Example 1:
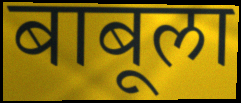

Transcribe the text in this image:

बाबूला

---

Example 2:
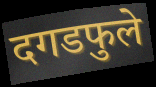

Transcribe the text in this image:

दगडफुले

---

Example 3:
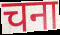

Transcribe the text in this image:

चना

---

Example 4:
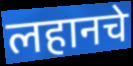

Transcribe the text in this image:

लहानचे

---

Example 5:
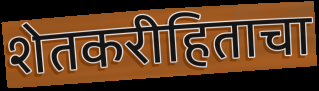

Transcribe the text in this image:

शेतकरीहिताचा